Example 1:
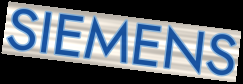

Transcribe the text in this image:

SIEMENS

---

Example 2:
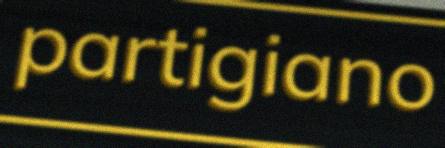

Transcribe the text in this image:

partigiano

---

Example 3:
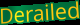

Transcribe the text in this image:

Derailed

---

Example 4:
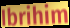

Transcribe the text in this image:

Ibrihim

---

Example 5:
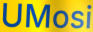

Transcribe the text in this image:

UMosi